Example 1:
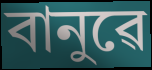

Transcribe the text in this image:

বানুৱে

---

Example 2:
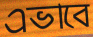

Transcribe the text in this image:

এভাবে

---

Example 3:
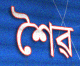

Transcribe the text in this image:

শৈৱ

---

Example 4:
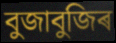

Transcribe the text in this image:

বুজাবুজিৰ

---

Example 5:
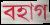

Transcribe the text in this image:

বহাগ